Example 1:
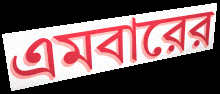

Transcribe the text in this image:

এমবারের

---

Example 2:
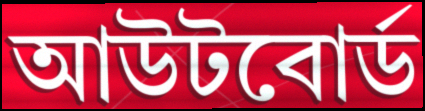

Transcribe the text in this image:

আউটবোর্ড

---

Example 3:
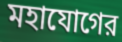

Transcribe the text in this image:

মহাযোগের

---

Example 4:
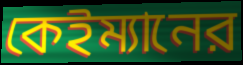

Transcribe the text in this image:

কেইম্যানের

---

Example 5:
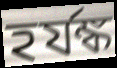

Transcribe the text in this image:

হর্যঙ্ক